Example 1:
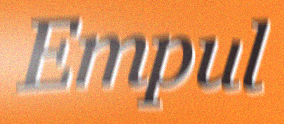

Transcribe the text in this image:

Empul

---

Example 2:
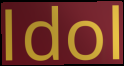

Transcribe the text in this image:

Idol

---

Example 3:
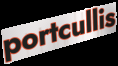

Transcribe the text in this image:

portcullis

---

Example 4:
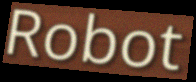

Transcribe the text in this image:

Robot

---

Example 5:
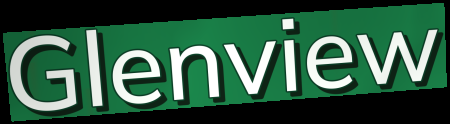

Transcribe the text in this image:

Glenview